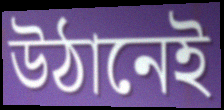
উঠানেই